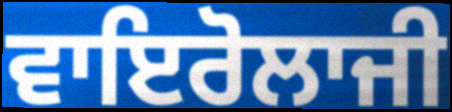
ਵਾਇਰੋਲਾਜੀ